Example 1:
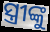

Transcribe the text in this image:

ସ୍ତ୍ରୀଙ୍କୁ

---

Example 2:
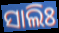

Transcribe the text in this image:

ସାଲିଃ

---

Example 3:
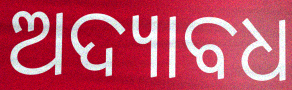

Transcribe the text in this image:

ଅଦ୍ୟାବଧ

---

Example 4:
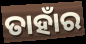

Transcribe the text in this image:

ତାହାଁର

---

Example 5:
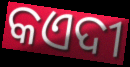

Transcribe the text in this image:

କଏଦୀ